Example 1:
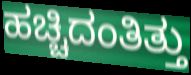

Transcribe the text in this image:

ಹಚ್ಚಿದಂತಿತ್ತು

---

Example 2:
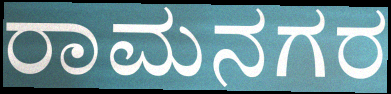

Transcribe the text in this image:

ರಾಮನಗರ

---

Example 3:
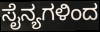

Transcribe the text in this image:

ಸೈನ್ಯಗಳಿಂದ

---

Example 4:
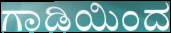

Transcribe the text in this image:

ಗಾಡಿಯಿಂದ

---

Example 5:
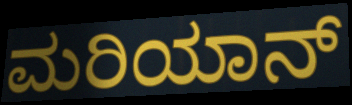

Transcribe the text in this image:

ಮರಿಯಾನ್